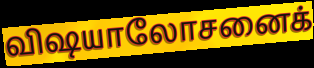
விஷயாலோசனைக்